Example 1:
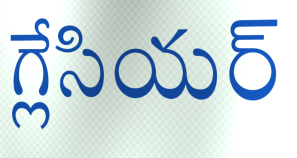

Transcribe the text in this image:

గ్లేసియర్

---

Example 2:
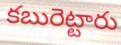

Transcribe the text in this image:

కబురెట్టారు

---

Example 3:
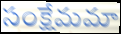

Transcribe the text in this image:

సంక్షేమమా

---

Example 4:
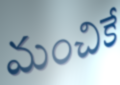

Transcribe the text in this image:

మంచికే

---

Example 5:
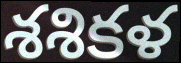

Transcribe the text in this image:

శశికళ